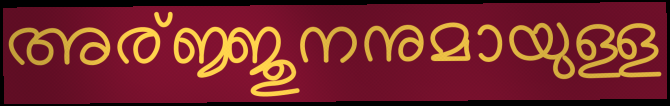
അര്ജ്ജുനനുമായുള്ള